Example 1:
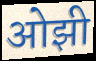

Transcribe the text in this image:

ओझी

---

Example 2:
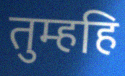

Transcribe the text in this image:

तुम्हहि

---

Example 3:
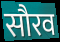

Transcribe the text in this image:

सौरव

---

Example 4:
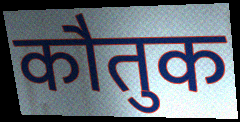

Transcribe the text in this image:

कौतुक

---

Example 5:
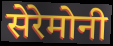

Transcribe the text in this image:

सेरेमोनी